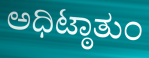
ಅಧಿಟ್ಠಾತುಂ